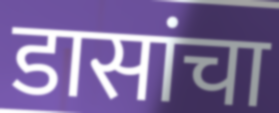
डासांचा